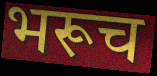
भरूच